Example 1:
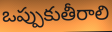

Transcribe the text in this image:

ఒప్పుకుతీరాలి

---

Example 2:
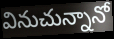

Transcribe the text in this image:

వినుచున్నానో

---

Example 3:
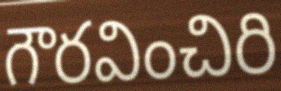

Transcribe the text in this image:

గౌరవించిరి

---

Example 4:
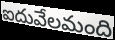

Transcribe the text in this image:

ఐదువేలమంది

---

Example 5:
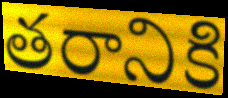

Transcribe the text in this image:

తరానికి